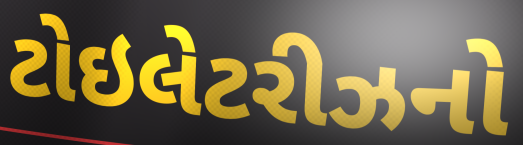
ટોઇલેટરીઝનો